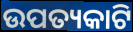
ଉପତ୍ୟକାଟି